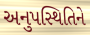
અનુપસ્થિતિને